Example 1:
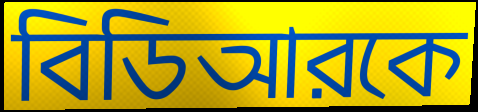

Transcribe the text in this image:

বিডিআরকে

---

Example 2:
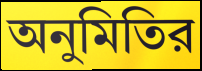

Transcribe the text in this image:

অনুমিতির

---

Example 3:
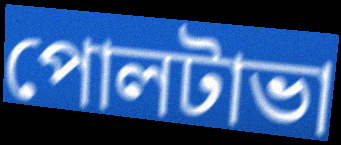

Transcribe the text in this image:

পোলটাভা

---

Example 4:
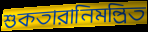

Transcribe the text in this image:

শুকতারানিমন্ত্রিত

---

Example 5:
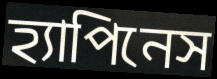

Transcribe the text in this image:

হ্যাপিনেস